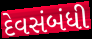
દેવસંબંધી